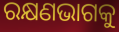
ରକ୍ଷଣଭାଗକୁ